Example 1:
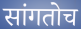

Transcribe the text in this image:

सांगतोच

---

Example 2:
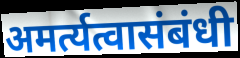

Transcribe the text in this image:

अमर्त्यत्वासंबंधी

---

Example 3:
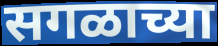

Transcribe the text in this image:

सगळाच्या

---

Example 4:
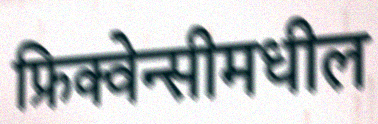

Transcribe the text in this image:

फ्रिक्वेन्सीमधील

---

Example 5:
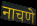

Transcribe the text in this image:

नाचणे